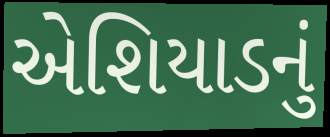
એશિયાડનું